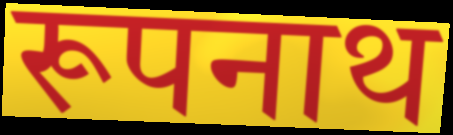
रूपनाथ